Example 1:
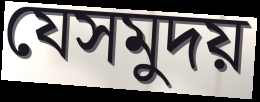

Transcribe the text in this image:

যেসমুদয়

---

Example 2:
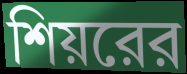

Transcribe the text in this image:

শিয়রের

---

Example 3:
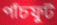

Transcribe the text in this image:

পাঁচফুট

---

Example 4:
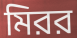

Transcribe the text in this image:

মিরর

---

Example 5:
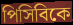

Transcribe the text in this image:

পিসিবিকে